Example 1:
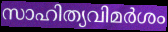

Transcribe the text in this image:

സാഹിത്യവിമർശം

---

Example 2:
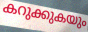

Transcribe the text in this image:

കറുക്കുകയും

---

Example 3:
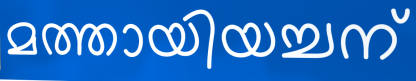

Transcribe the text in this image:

മത്തായിയച്ചന്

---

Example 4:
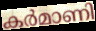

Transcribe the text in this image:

കർമാണി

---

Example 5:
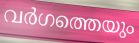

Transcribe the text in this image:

വർഗത്തെയും